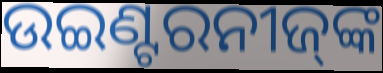
ଉଇଣ୍ଟରନୀଜ୍‌ଙ୍କ